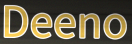
Deeno